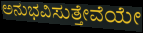
ಅನುಭವಿಸುತ್ತೇವೆಯೇ